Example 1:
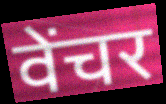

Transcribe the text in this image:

वेंचर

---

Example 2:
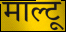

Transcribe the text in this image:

माल्टू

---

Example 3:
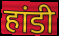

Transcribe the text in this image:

हांडी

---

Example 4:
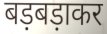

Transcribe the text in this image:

बड़बड़ाकर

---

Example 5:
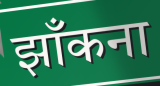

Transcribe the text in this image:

झाँकना